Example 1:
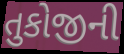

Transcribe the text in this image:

તુકોજીની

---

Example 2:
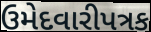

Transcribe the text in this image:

ઉમેદવારીપત્રક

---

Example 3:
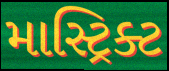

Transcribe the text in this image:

માસ્ટ્રિક્ટ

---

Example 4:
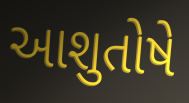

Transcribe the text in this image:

આશુતોષે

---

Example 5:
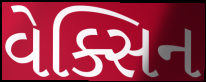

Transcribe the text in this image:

વેક્સિન